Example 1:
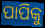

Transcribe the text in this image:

ପାପିକୁ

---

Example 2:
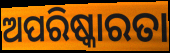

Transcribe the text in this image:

ଅପରିଷ୍କାରତା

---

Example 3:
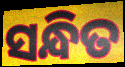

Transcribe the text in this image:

ସନ୍ଧିତ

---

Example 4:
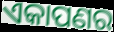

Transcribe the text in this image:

ଏକାପଣର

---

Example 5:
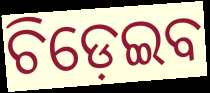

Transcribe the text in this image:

ଚିଡ଼େଇବ